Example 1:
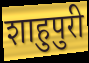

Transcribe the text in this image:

शाहुपुरी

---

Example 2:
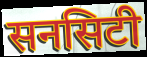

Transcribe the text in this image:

सनसिटी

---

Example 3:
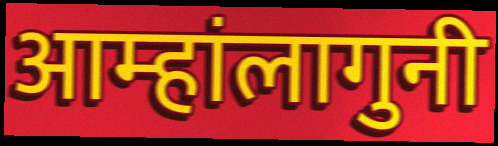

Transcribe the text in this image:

आम्हांलागुनी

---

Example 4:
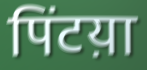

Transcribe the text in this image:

पिंटय़ा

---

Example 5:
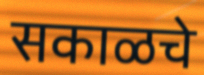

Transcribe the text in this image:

सकाळचे